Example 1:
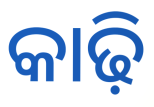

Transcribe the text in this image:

କାଢ଼ି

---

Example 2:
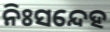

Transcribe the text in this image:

ନିଃସନ୍ଦେହ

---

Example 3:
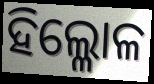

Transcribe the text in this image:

ହିଲ୍ଳୋଳ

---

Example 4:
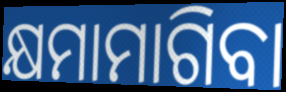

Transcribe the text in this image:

କ୍ଷମାମାଗିବା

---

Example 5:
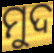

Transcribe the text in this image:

ମୁଦ